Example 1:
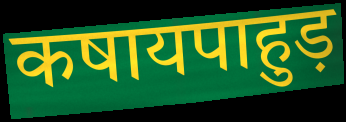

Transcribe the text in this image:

कषायपाहुड़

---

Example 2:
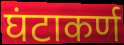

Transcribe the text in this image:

घंटाकर्ण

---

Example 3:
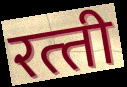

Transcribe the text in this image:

रत्‍ती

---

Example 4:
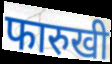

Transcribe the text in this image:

फारुखी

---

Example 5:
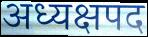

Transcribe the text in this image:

अध्यक्षपद